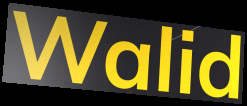
Walid